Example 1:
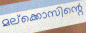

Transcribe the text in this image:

മല്ക്കൊസിന്റെ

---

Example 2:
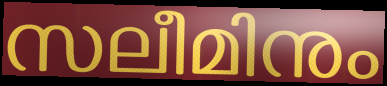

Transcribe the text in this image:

സലീമിനും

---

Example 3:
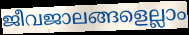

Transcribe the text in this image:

ജീവജാലങ്ങളെല്ലാം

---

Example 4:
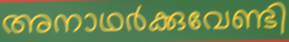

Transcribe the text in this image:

അനാഥർക്കുവേണ്ടി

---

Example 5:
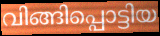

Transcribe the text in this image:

വിങ്ങിപ്പൊട്ടിയ